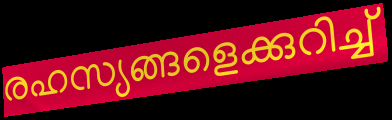
രഹസ്യങ്ങളെക്കുറിച്ച്